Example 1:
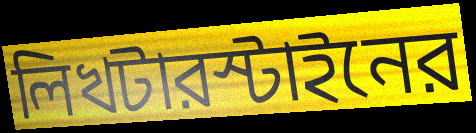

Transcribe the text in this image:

লিখটারস্টাইনের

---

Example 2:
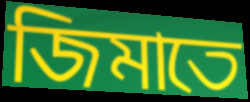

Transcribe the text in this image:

জিমাতে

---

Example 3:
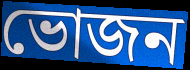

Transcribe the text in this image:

ভোজন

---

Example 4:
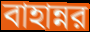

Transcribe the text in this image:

বাহান্নর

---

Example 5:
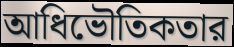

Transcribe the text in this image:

আধিভৌতিকতার